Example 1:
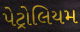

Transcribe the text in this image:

પેટ્રોલિયમ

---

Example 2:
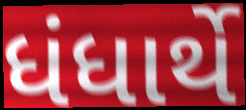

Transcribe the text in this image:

ધંધાર્થે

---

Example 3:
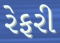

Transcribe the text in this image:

રેફરી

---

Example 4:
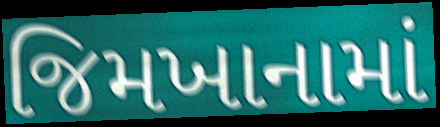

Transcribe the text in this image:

જિમખાનામાં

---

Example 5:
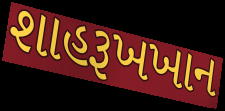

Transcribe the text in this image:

શાહરૂખખાન